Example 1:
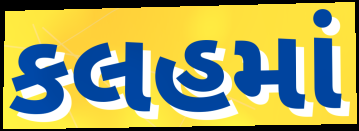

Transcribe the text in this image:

કલહમાં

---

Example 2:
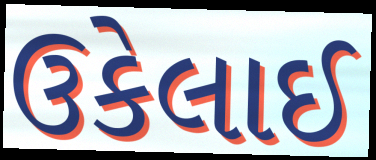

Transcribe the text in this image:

ઉકેલાઈ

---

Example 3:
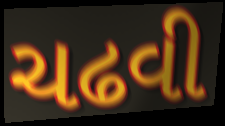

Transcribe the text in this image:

ચઢવી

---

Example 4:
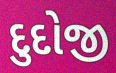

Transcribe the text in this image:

દુદોજી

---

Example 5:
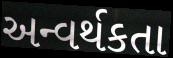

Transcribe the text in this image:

અન્વર્થકતા